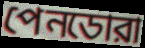
পেনডোরা